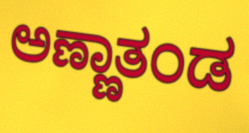
ಅಣ್ಣಾತಂಡ